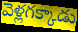
వెళ్లగక్కాడు